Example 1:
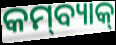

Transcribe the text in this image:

କମ୍‌ବ୍ୟାକ୍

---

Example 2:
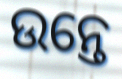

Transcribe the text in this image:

ଉନ୍ତେ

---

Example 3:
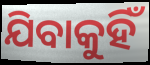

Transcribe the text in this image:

ଯିବାକୁହିଁ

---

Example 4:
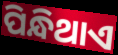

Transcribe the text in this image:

ପିନ୍ଧିଥାଏ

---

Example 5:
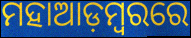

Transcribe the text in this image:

ମହାଆଡ଼ମ୍ୱରରେ